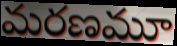
మరణమూ